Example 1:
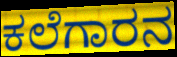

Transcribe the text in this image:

ಕಲೆಗಾರನ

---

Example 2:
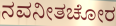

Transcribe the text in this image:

ನವನೀತಚೋರ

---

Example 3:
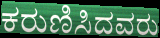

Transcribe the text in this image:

ಕರುಣಿಸಿದವರು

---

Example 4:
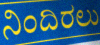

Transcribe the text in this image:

ನಿಂದಿರಲು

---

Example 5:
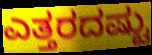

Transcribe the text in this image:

ಎತ್ತರದಷ್ಟು